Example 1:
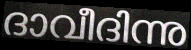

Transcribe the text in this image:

ദാവീദിന്നു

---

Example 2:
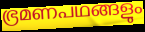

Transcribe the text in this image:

ഭ്രമണപഥങ്ങളും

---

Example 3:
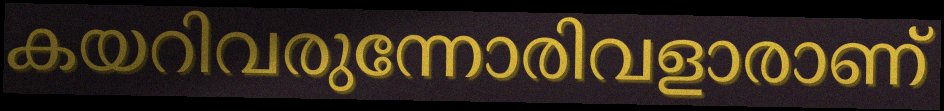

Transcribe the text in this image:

കയറിവരുന്നോരിവളാരാണ്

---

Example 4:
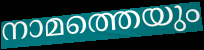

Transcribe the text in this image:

നാമത്തെയും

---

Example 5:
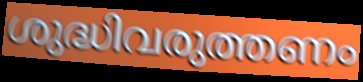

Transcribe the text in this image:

ശുദ്ധിവരുത്തണം